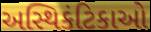
અસ્થિકંટિકાઓ